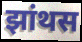
झांथस